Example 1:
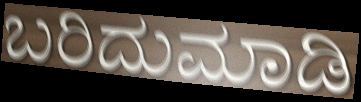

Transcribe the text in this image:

ಬರಿದುಮಾಡಿ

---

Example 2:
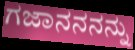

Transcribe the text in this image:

ಗಜಾನನನನ್ನು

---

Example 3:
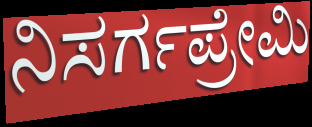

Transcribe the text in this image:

ನಿಸರ್ಗಪ್ರೇಮಿ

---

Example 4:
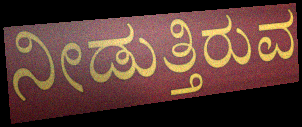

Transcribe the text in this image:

ನೀಡುತ್ತಿರುವ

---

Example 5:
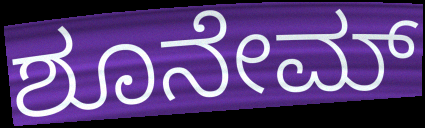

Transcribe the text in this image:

ಶೂನೇಮ್